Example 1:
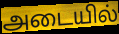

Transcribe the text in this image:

அடையில்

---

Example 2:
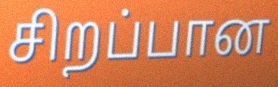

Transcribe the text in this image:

சிறப்பான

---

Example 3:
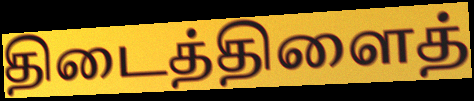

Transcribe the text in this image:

திடைத்திளைத்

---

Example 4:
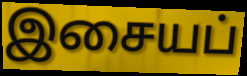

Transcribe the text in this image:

இசையப்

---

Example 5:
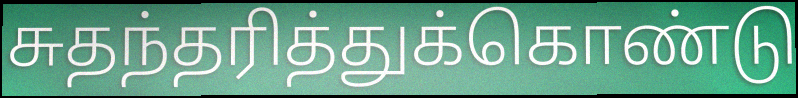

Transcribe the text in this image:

சுதந்தரித்துக்கொண்டு